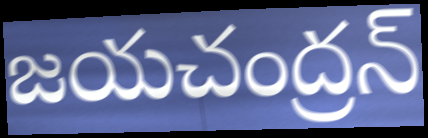
జయచంద్రన్